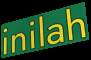
inilah